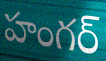
హంగర్